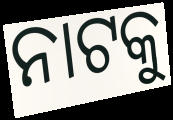
ନାଟକୁ